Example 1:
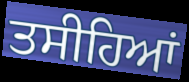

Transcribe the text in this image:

ਤਸੀਹਿਆਂ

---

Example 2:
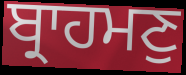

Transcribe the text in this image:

ਬ੍ਰਾਹਮਣੁ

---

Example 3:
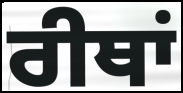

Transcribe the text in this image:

ਰੀਥਾਂ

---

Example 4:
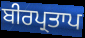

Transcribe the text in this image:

ਬੀਰਪ੍ਰਤਾਪ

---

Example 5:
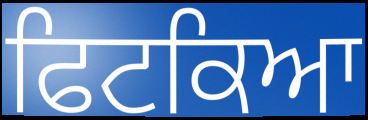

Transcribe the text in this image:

ਫਿਟਕਿਆ